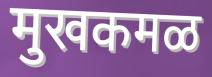
मुखकमळ